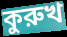
কুরুখ